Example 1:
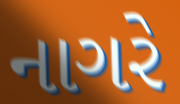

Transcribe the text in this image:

નાગરે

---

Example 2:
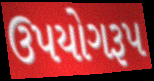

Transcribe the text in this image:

ઉપયોગરૂપ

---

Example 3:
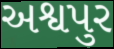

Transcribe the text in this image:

અશ્વપુર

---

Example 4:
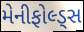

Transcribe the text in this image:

મેનીફોલ્ડ્સ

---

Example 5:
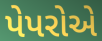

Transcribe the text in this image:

પેપરોએ